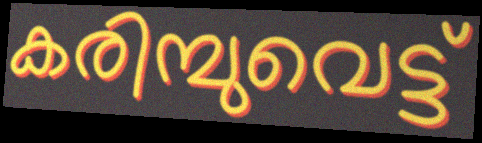
കരിമ്പുവെട്ട്